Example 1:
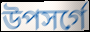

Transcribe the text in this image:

উপসর্গে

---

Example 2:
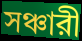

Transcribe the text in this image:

সঞ্চারী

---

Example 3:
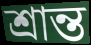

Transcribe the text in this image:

শ্রান্ত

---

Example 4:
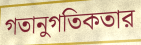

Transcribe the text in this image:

গতানুগতিকতার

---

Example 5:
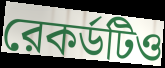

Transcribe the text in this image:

রেকর্ডটিও